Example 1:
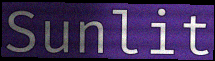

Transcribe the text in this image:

Sunlit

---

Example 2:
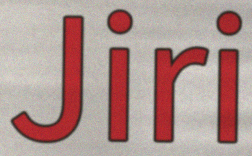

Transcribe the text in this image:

Jiri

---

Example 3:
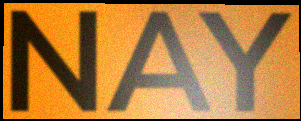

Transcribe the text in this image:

NAY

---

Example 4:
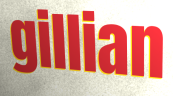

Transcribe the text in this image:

gillian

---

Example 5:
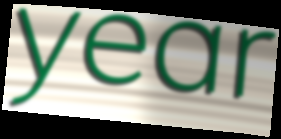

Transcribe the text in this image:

year